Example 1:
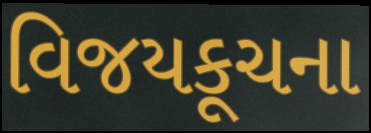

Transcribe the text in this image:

વિજયકૂચના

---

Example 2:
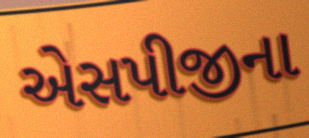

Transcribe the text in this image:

એસપીજીના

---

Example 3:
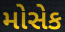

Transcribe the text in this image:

મોસેક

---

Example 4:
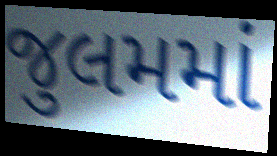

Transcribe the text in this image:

જુલમમાં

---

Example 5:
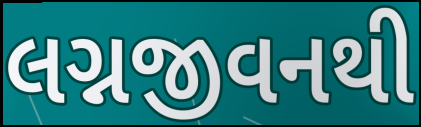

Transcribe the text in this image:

લગ્નજીવનથી